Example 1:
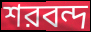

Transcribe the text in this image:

শরবন্দ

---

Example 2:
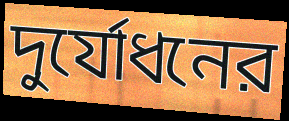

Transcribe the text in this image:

দুর্যোধনের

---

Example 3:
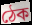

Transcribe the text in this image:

ঠেক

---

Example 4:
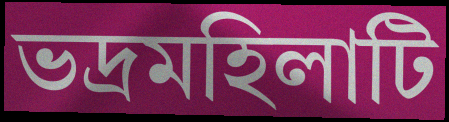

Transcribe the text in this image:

ভদ্রমহিলাটি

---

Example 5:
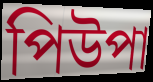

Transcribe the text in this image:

পিউপা